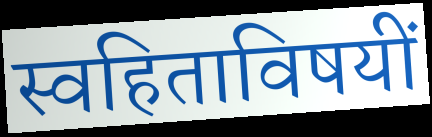
स्वहिताविषयीं